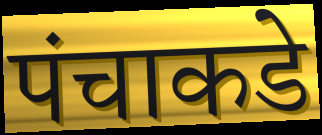
पंचाकडे